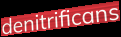
denitrificans